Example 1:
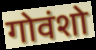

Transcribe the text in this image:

गोवंशो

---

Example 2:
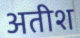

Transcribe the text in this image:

अतीश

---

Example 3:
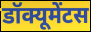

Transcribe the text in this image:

डॉक्यूमेंटस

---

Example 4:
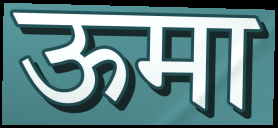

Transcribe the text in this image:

ऊमा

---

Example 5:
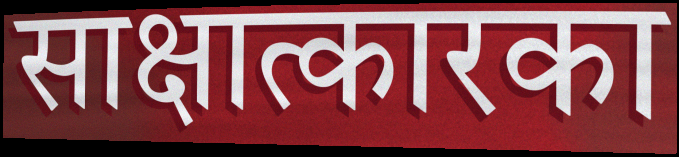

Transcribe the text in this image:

साक्षात्कारका